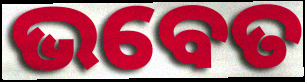
ଭବେତ